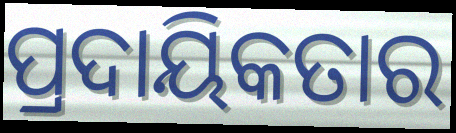
ପ୍ରଦାୟିକତାର